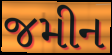
જમીન